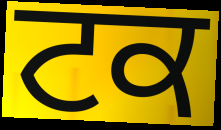
ਟਕ